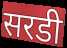
सरडी